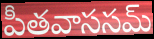
పీతవాససమ్